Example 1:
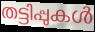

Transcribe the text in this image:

തട്ടിപ്പുകൾ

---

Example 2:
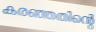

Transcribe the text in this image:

കരഞ്ഞതിന്റെ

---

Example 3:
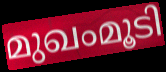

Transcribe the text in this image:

മുഖംമൂടി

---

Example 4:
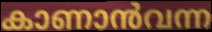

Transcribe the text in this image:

കാണാൻവന്ന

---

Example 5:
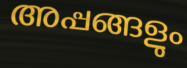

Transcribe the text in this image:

അപ്പങ്ങളും